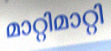
മാറ്റിമാറ്റി